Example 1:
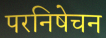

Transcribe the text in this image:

परनिषेचन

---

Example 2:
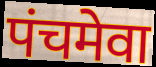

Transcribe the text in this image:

पंचमेवा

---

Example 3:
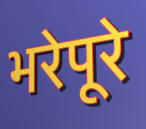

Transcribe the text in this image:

भरेपूरे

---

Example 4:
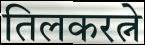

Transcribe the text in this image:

तिलकरत्ने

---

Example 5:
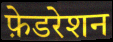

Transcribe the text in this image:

फ़ेडरेशन